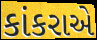
કાંકરાએ